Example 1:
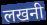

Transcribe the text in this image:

लखनी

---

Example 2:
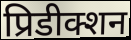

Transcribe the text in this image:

प्रिडीक्शन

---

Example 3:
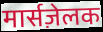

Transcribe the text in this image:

मार्सज़ेलक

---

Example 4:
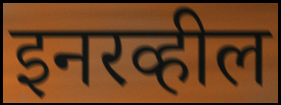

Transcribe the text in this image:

इनरव्हील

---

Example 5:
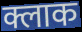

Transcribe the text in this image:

क्लाक